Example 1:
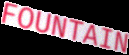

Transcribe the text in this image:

FOUNTAIN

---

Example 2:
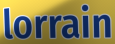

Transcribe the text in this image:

lorrain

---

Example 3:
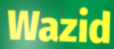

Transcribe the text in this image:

Wazid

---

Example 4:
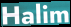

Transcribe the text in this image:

Halim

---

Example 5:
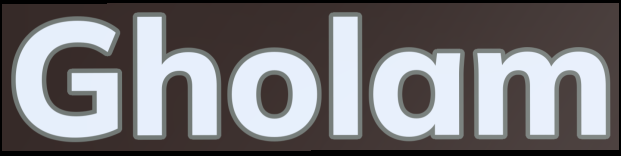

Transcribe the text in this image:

Gholam